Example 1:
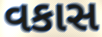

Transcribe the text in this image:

વકાસ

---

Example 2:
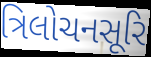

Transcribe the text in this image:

ત્રિલોચનસૂરિ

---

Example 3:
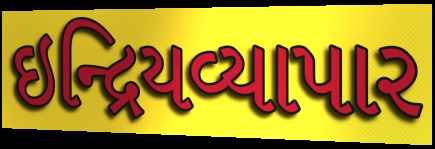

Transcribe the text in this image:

ઇન્દ્રિયવ્યાપાર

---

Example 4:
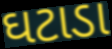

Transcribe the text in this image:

ઘટાડા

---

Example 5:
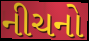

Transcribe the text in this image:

નીચનો